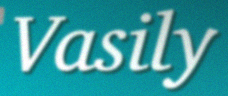
Vasily